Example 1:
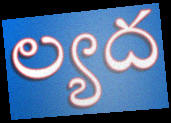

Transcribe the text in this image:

ల్యద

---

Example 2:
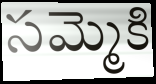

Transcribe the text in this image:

సమ్మెకి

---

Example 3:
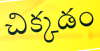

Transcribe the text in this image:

చిక్కడం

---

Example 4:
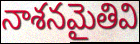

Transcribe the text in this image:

నాశనమైతివి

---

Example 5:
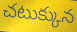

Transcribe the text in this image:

చటుక్కున